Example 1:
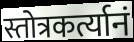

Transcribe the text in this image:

स्तोत्रकर्त्यानं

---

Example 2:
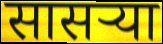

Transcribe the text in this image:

सासर्‍या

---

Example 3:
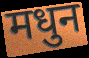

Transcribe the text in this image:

मधुन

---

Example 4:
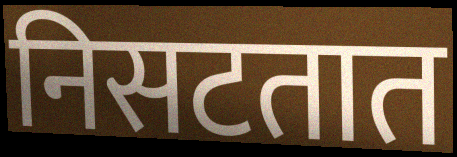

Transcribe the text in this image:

निसटतात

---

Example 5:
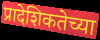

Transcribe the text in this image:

प्रादेशिकतेच्या